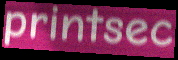
printsec